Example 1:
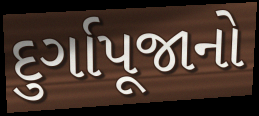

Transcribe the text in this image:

દુર્ગાપૂજાનો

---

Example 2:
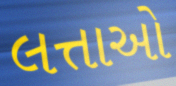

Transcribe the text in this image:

લત્તાઓ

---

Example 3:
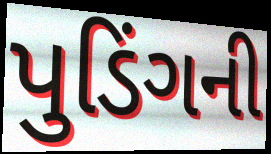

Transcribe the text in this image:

પુડિંગની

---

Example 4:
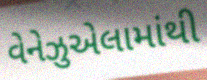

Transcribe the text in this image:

વેનેઝુએલામાંથી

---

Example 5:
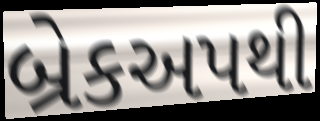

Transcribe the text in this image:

બ્રેકઅપથી